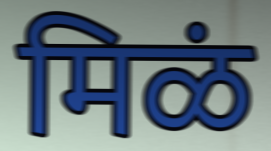
मिळं